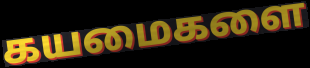
கயமைகளை